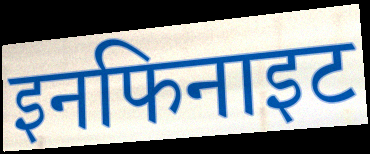
इनफिनाइट